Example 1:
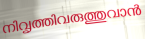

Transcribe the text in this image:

നിവൃത്തിവരുത്തുവാൻ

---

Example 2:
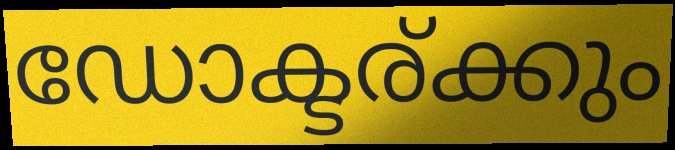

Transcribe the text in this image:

ഡോക്ടര്ക്കും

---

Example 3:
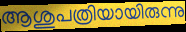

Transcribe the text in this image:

ആശുപത്രിയായിരുന്നു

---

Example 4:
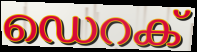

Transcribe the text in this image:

ഡെറക്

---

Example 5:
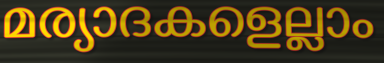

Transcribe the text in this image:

മര്യാദകളെല്ലാം